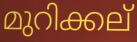
മുറിക്കല്